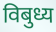
विबुध्य